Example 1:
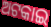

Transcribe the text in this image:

ଅଟକାଇ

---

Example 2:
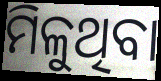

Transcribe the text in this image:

ମିଳୁଥିବା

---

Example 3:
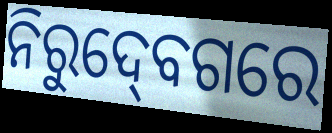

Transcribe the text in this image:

ନିରୁଦ୍‍ବେଗରେ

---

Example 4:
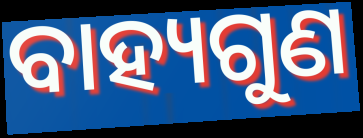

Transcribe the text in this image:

ବାହ୍ୟଗୁଣ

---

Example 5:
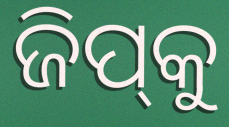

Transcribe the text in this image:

ଜିପ୍‌କୁ